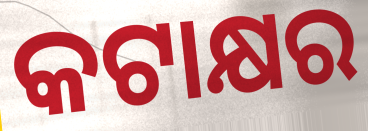
କଟାକ୍ଷର